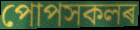
পোপসকলৰ